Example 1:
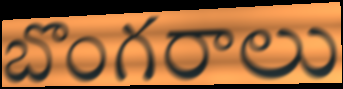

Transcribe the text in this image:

బొంగరాలు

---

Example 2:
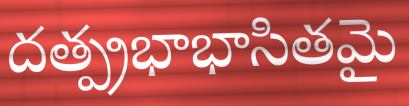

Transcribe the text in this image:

దత్ప్రభాభాసితమై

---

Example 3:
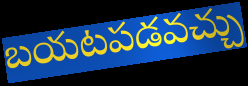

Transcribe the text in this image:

బయటపడవచ్చు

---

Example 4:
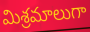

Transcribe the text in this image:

మిశ్రమాలుగా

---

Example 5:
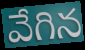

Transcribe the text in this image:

వేగిన